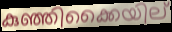
കുഞ്ഞിക്കൈയില്